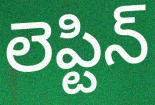
లెప్టిన్